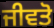
ਜੀਵਤੋ